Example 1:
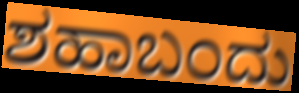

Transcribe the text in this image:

ಶಹಾಬಂದು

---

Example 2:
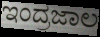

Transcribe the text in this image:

ಇಂದ್ರಜಾಲ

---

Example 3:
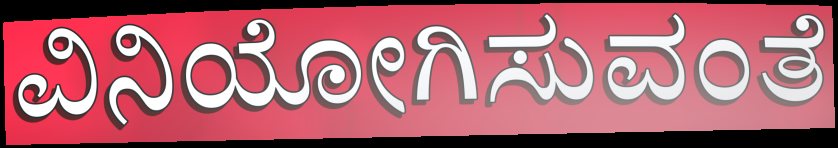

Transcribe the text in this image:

ವಿನಿಯೋಗಿಸುವಂತೆ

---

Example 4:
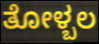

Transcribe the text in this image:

ತೋಳ್ಬಲ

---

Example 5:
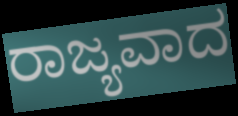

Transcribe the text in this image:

ರಾಜ್ಯವಾದ